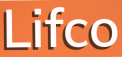
Lifco